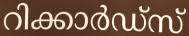
റിക്കാർഡ്സ്